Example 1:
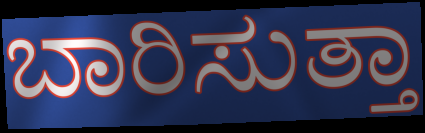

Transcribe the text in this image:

ಬಾರಿಸುತ್ತಾ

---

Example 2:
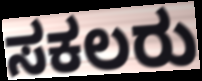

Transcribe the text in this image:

ಸಕಲರು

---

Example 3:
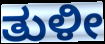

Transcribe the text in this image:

ತುಳೀ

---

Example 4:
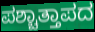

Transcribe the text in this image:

ಪಶ್ಚಾತ್ತಾಪದ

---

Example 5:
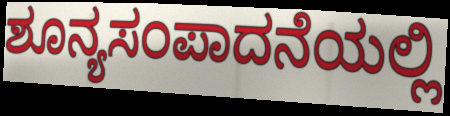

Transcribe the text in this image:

ಶೂನ್ಯಸಂಪಾದನೆಯಲ್ಲಿ